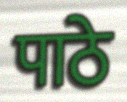
पाठे